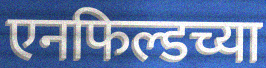
एनफिल्डच्या